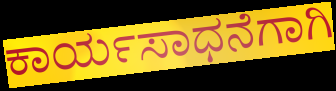
ಕಾರ್ಯಸಾಧನೆಗಾಗಿ